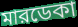
মারডেকা